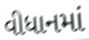
વીધાનમાં